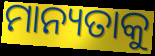
ମାନ୍ୟତାକୁ